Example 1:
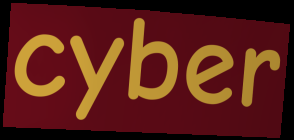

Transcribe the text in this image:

cyber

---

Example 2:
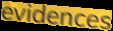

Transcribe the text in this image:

evidences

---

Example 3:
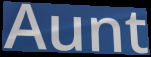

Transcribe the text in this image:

Aunt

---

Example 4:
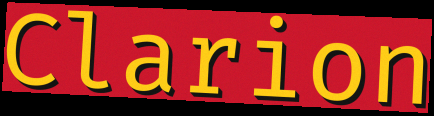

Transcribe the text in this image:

Clarion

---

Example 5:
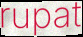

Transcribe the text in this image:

rupat